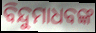
ବିନ୍ଦୁମାଧବଙ୍କ